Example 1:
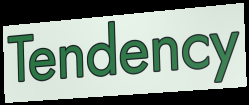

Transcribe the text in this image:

Tendency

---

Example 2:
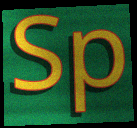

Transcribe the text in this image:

Sp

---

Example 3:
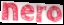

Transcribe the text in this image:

nero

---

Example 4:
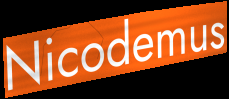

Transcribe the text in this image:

Nicodemus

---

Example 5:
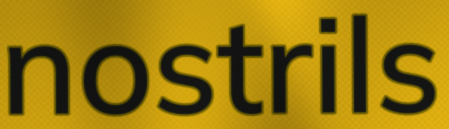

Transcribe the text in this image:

nostrils